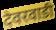
देवरवाडी